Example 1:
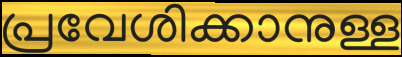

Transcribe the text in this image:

പ്രവേശിക്കാനുള്ള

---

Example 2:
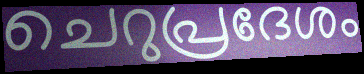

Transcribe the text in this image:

ചെറുപ്രദേശം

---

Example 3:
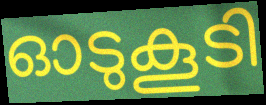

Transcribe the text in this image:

ഓടുകൂടി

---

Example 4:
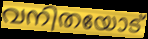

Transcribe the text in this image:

വനിതയോട്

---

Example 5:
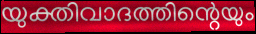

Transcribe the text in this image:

യുക്തിവാദത്തിന്റെയും